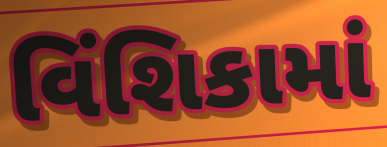
વિંશિકામાં